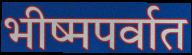
भीष्मपर्वात